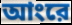
আংরে